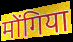
मोंगिया